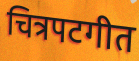
चित्रपटगीत